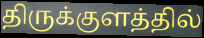
திருக்குளத்தில்